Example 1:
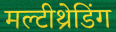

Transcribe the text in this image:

मल्टीथ्रेडिंग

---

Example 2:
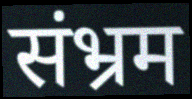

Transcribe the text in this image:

संभ्रम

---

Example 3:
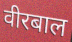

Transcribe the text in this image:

वीरबाल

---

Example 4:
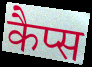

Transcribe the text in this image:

कैप्स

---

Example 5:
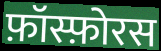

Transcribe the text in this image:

फ़ॉस्फ़ोरस